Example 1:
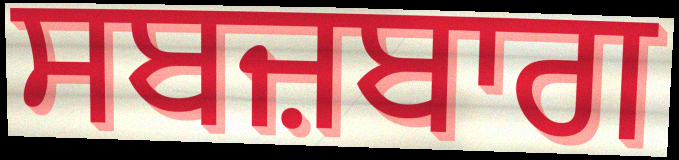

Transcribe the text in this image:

ਸਬਜ਼ਬਾਗ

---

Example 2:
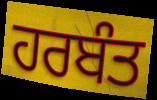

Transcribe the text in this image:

ਹਰਬੰਤ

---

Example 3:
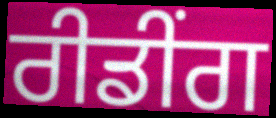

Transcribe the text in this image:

ਰੀਡੀਂਗ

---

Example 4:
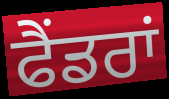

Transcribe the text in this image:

ਫੈਂਡਰਾਂ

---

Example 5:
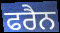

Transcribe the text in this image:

ਫਰੈਨ